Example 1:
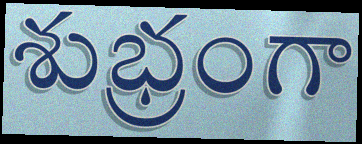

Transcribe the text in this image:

శుభ్రంగా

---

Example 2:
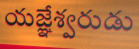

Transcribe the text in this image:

యజ్ఞేశ్వరుడు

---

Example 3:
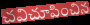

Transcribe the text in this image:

చవిచూపించిన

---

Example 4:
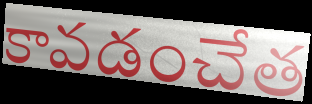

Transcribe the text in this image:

కావడంచేత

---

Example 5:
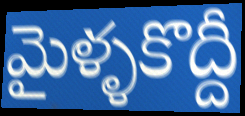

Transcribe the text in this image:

మైళ్ళకొద్దీ